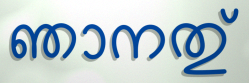
ഞാനതു്